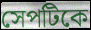
সেপটিকে